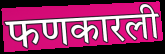
फणकारली